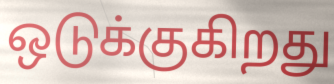
ஒடுக்குகிறது